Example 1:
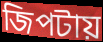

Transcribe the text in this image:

জিপটায়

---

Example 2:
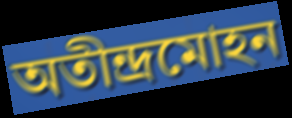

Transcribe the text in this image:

অতীন্দ্রমোহন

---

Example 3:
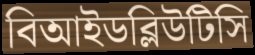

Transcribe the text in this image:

বিআইডব্লিউটিসি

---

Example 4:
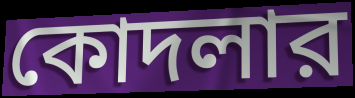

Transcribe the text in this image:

কোদলার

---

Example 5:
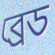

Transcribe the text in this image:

ব্রেড